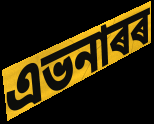
এভনাৰৰ